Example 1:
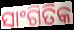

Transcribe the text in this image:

ସାଂଗିତିକ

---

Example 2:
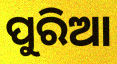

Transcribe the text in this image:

ପୁରିଆ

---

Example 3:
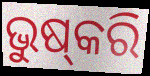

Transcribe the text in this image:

ଭୁଷ୍‍କରି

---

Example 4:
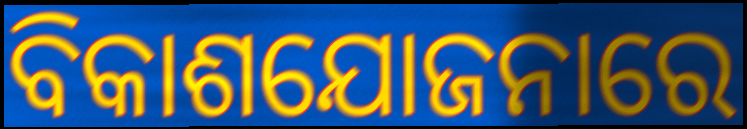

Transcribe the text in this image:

ବିକାଶଯୋଜନାରେ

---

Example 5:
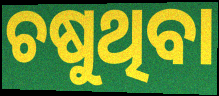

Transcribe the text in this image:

ଚଷୁଥିବା